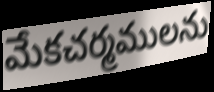
మేకచర్మములను